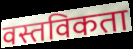
वस्तविकता